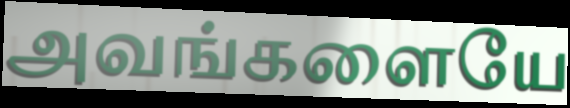
அவங்களையே